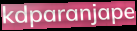
kdparanjape